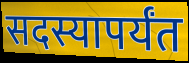
सदस्यापर्यंत